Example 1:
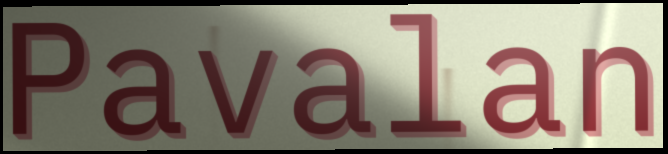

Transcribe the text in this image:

Pavalan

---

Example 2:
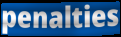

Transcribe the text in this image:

penalties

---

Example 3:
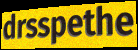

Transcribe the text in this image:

drsspethe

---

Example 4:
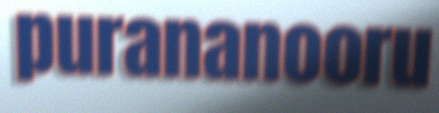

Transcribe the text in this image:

purananooru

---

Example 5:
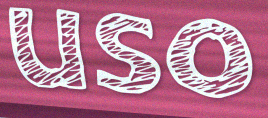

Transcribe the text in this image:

uso